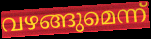
വഴങ്ങുമെന്ന്